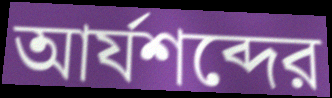
আর্যশব্দের